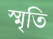
স্মৃতি